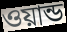
ওয়ান্ড